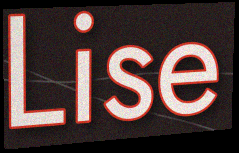
Lise